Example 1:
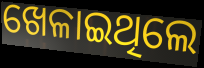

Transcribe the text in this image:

ଖେଳାଇଥିଲେ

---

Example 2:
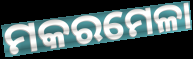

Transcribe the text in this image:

ମକରମେଳା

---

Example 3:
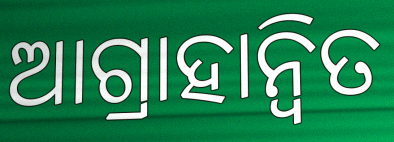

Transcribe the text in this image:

ଆଗ୍ରାହାନ୍ୱିତ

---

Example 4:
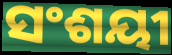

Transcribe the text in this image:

ସଂଶୟୀ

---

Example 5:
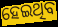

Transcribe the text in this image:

ହେଇଥିବ